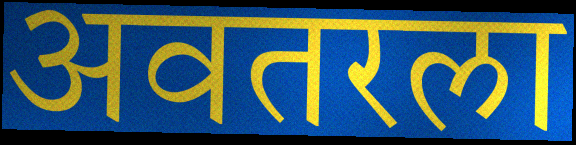
अवतरला